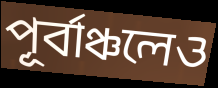
পূর্বাঞ্চলেও